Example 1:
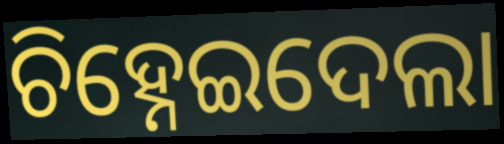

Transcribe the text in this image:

ଚିହ୍ନେଇଦେଲା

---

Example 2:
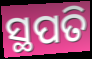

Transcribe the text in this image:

ସ୍ଥପତି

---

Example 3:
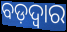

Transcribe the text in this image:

ବଡ଼ଦ୍ୱାର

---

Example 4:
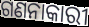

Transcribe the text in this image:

ଗଣନାକାରୀ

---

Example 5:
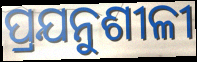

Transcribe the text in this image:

ପ୍ରଯନୁଶୀଳୀ